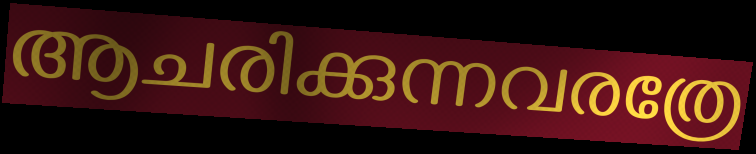
ആചരിക്കുന്നവരത്രേ